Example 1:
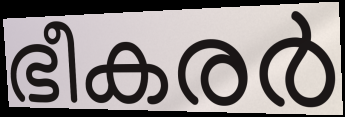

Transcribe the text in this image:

ഭീകരർ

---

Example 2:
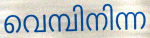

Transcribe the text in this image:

വെമ്പിനിന്ന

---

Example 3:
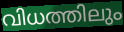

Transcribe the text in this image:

വിധത്തിലും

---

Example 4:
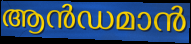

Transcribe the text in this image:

ആൻഡമാൻ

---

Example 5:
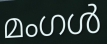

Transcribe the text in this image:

മംഗൾ